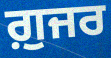
ਗ਼ੁਜਰ